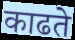
काढते